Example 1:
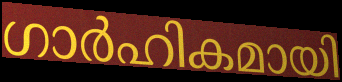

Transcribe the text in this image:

ഗാർഹികമായി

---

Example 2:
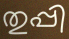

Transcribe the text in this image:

തുപ്പി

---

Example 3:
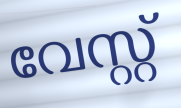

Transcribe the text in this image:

വേസ്റ്റ്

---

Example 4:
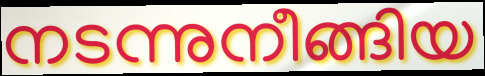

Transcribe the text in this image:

നടന്നുനീങ്ങിയ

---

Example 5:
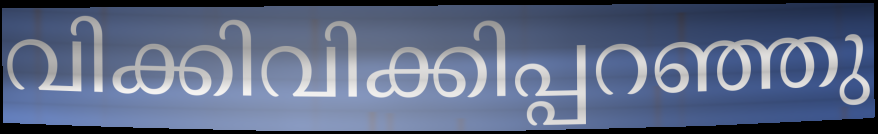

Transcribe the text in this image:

വിക്കിവിക്കിപ്പറഞ്ഞു